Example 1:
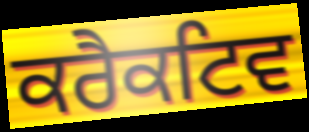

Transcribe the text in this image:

ਕਰੈਕਟਿਵ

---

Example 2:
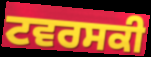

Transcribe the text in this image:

ਟਵਰਸਕੀ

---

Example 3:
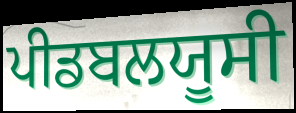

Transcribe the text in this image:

ਪੀਡਬਲਯੂਸੀ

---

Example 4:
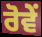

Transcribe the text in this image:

ਰੋਵੇਂ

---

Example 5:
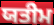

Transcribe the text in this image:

ਯਤੀਮ